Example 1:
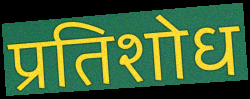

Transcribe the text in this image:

प्रतिशोध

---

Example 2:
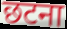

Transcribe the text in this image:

छटना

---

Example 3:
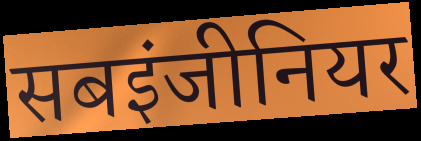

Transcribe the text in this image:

सबइंजीनियर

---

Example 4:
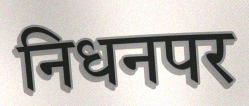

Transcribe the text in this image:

निधनपर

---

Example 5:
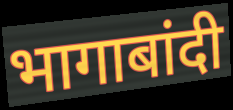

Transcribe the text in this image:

भागाबांदी